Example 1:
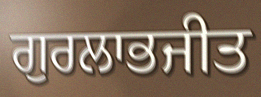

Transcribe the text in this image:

ਗੁਰਲਾਭਜੀਤ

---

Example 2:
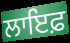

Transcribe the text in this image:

ਲਾਇਫ਼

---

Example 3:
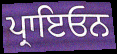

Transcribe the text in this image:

ਪ੍ਰਾਇਓਨ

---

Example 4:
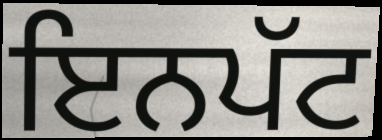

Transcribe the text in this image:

ਇਨਪੱਟ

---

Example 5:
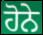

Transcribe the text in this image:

ਹੋਨੇ